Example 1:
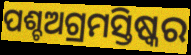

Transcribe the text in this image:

ପଶ୍ଚଅଗ୍ରମସ୍ତିଷ୍କର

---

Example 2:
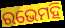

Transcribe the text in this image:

ରଭେମହି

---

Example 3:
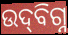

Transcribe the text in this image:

ଉଦ୍‌ବିଗ୍ନ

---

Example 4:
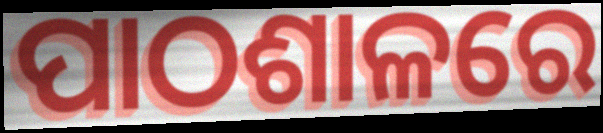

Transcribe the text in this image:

ପାଠଶାଳରେ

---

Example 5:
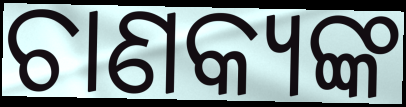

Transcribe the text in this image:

ଚାଣକ୍ୟଙ୍କ